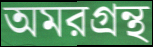
অমরগ্রন্থ